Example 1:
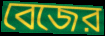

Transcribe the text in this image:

বেজের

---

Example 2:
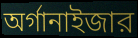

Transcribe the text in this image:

অর্গানাইজার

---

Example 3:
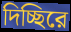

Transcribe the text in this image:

দিচ্ছিরে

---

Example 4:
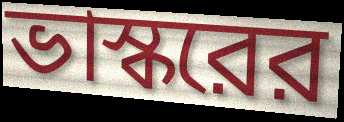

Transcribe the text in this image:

ভাস্করের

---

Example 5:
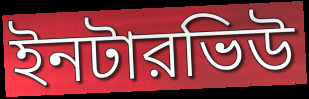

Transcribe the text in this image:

ইনটারভিউ